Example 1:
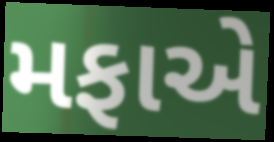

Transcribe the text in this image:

મફાએ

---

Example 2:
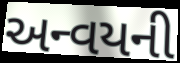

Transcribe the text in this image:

અન્વયની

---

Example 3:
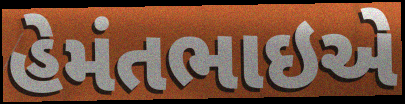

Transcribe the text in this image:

હેમંતભાઇએ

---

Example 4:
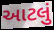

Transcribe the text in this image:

આટલું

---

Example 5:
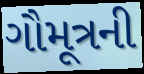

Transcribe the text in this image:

ગૌમૂત્રની